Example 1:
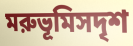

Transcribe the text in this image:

মরুভূমিসদৃশ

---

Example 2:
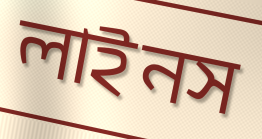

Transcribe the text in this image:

লাইনস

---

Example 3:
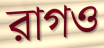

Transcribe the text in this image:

রাগও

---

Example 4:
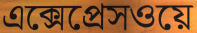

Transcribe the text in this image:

এক্সেপ্রেসওয়ে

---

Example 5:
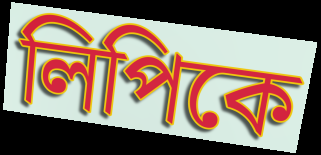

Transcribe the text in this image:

লিপিকে